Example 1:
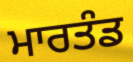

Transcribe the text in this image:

ਮਾਰਤੰਡ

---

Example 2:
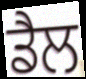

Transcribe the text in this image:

ਡੈਲ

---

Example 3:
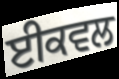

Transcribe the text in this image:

ਈਕਵਲ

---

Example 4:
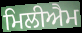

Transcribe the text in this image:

ਮਿਲੀਐਮ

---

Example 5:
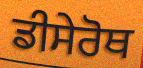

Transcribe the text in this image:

ਡੀਸੇਰੋਥ